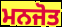
ਮਨਜੋਤ